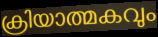
ക്രിയാത്മകവും